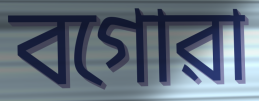
বগোৱা